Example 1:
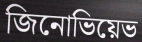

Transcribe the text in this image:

জিনোভিয়েভ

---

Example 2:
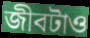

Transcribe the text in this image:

জীবটাও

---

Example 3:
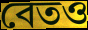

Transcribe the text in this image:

বেতও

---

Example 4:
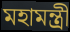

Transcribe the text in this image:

মহামন্ত্রী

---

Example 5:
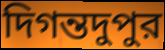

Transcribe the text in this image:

দিগন্তদুপুর